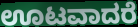
ಊಟವಾದರೆ